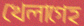
খেলাগেহ